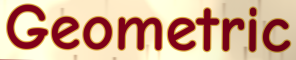
Geometric